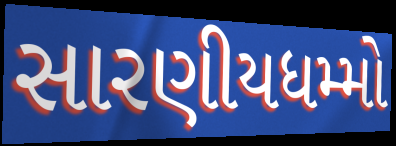
સારણીયધમ્મો